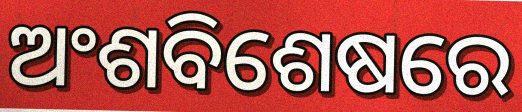
ଅଂଶବିଶେଷରେ